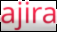
ajira